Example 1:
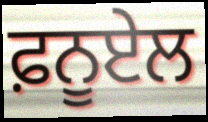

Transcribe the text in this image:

ਫ਼ਨੂਏਲ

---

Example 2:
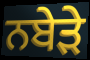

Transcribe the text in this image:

ਨਬੇੜੇ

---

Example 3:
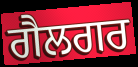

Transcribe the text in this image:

ਗੈਲਗਰ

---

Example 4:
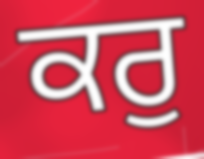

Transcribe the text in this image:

ਕਰੁ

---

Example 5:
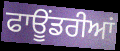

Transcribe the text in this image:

ਫਾਊਂਡਰੀਆਂ